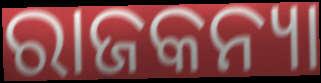
ରାଜକନ୍ୟା